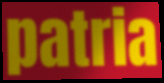
patria